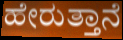
ಹೇರುತ್ತಾನೆ